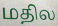
மதில